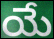
యే